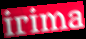
irima